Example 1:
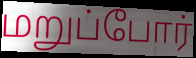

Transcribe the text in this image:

மறுப்போர்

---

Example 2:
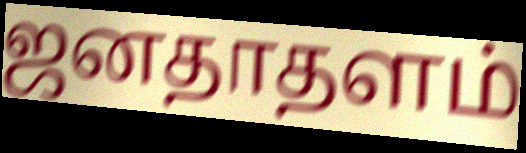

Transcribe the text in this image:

ஜனதாதளம்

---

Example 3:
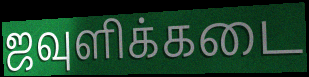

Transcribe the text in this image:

ஜவுளிக்கடை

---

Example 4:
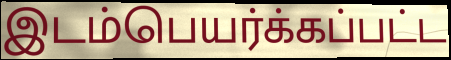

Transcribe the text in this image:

இடம்பெயர்க்கப்பட்ட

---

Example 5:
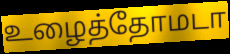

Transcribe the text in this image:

உழைத்தோமடா